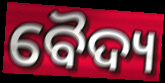
ବୈଦ୍ୟ